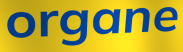
organe